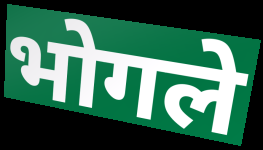
भोगले